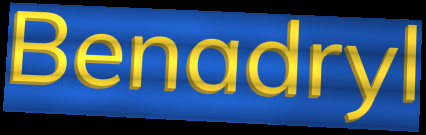
Benadryl